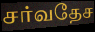
சர்வதேச